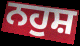
ਨਹੁਸ਼